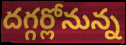
దగ్గర్లోనున్న